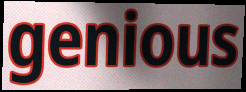
genious